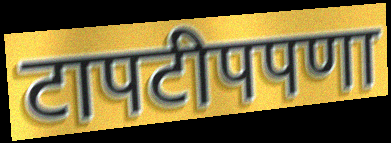
टापटीपपणा